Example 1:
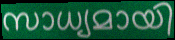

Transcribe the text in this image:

സാധ്യമായി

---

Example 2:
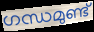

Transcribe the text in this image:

ഗന്ധമുണ്ട്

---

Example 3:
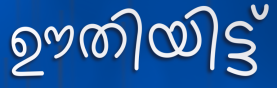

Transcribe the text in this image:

ഊതിയിട്ട്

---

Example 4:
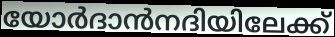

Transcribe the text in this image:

യോർദാൻനദിയിലേക്ക്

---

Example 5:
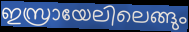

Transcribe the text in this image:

ഇസ്രായേലിലെങ്ങും